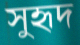
সুহৃদ